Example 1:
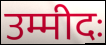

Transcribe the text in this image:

उम्मीदः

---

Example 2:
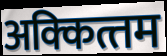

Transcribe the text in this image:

अक्‍कित्‍तम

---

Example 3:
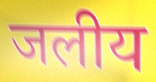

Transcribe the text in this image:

जलीय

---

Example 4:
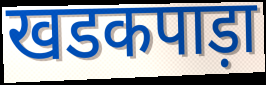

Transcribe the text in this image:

खडकपाड़ा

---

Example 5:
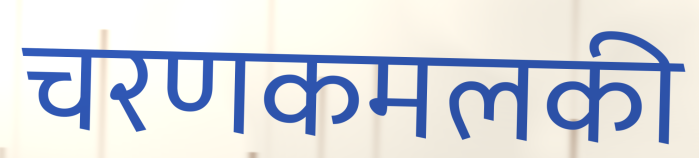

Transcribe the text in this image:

चरणकमलकी